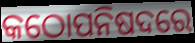
କଠୋପନିଷଦରେ